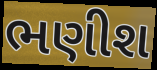
ભણીશ